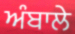
ਅੰਬਾਲੇ